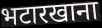
भटारखाना